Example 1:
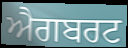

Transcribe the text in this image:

ਐਗਬਰਟ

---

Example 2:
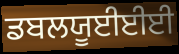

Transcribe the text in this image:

ਡਬਲਯੂਈਈਈ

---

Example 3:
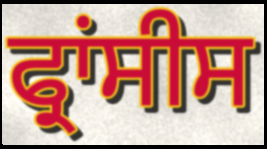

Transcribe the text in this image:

ਫ੍ਰਾਂਸੀਸ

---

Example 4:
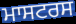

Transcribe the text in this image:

ਮਾਸਟਰਸ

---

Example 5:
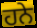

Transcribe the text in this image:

ਹਨੇ